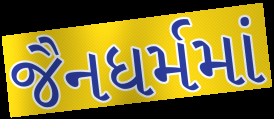
જૈનધર્મમાં